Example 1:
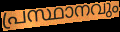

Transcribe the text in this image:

പ്രസ്ഥാനവും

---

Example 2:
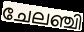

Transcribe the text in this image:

ചേലഞ്ചി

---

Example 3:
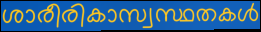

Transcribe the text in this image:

ശാരീരികാസ്വസ്ഥതകൾ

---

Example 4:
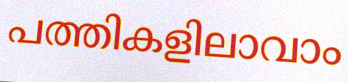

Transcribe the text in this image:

പത്തികളിലാവാം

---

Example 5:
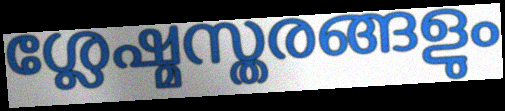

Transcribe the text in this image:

ശ്ലേഷ്മസ്തരങ്ങളും